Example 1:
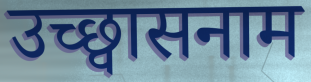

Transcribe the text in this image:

उच्छ्वासनाम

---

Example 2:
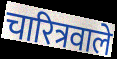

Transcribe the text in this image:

चारित्रवाले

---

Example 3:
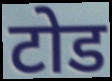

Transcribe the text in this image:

टोड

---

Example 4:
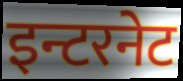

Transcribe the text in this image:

इन्‍टरनेट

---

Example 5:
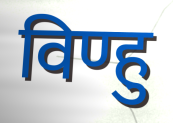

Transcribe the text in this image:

विण्हु